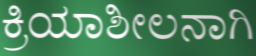
ಕ್ರಿಯಾಶೀಲನಾಗಿ